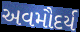
અવમૌદર્ય